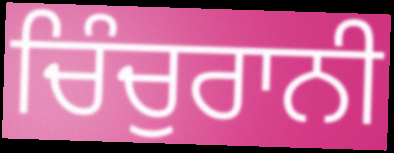
ਚਿੰਚੁਰਾਨੀ